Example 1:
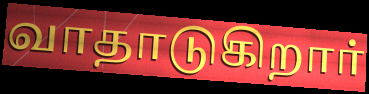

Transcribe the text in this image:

வாதாடுகிறார்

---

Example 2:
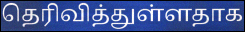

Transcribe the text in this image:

தெரிவித்துள்ளதாக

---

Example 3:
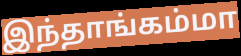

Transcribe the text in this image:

இந்தாங்கம்மா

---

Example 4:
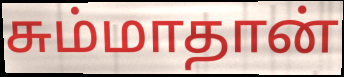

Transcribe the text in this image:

சும்மாதான்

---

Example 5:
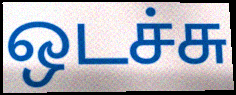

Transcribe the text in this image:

ஒடச்சு